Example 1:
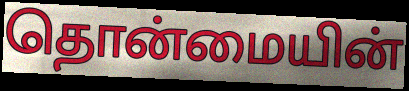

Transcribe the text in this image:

தொன்மையின்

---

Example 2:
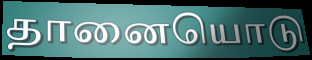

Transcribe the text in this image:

தானையொடு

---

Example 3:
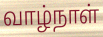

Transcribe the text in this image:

வாழ்நாள்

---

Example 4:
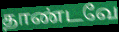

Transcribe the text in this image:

தாண்டவே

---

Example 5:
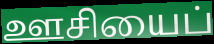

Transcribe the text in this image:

ஊசியைப்